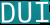
DUI